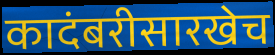
कादंबरीसारखेच